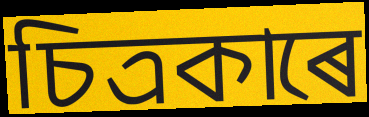
চিত্ৰকাৰে